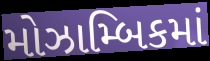
મોઝામ્બિકમાં